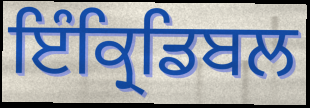
ਇੰਕ੍ਰਿਡਿਬਲ